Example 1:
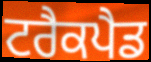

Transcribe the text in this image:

ਟਰੈਕਪੈਡ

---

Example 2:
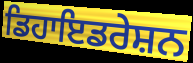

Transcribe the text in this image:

ਡਿਹਾਇਡਰੇਸ਼ਨ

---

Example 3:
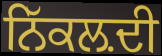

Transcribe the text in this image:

ਨਿੱਕਲ਼ਦੀ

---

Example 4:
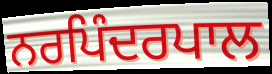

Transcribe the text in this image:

ਨਰਪਿੰਦਰਪਾਲ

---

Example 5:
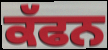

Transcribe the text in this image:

ਕੱਫਨ